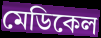
মেডিকেল